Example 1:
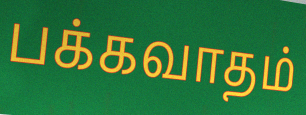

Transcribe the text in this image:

பக்கவாதம்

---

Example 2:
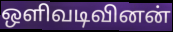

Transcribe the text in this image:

ஒளிவடிவினன்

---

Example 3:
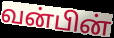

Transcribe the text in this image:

வன்பின்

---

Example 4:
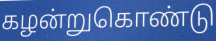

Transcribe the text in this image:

கழன்றுகொண்டு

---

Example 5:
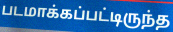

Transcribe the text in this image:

படமாக்கப்பட்டிருந்த